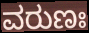
ವರುಣಃ